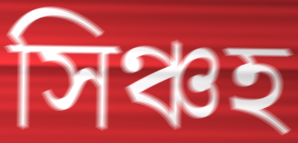
সিঞ্চহ